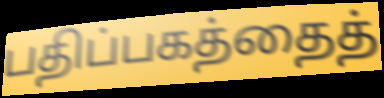
பதிப்பகத்தைத்